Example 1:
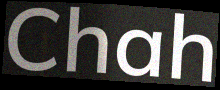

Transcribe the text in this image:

Chah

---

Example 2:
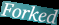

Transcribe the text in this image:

Forked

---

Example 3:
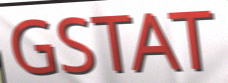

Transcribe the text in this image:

GSTAT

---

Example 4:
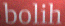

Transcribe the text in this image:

bolih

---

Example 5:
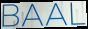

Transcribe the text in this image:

BAAL